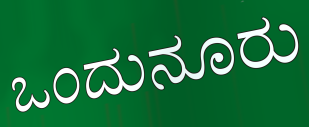
ಒಂದುನೂರು